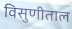
विसुणीताल